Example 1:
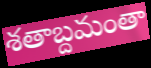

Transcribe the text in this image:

శతాబ్దమంతా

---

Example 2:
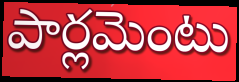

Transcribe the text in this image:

పార్లమెంటు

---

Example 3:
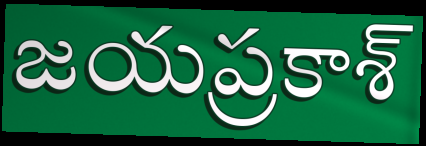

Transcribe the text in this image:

జయప్రకాశ్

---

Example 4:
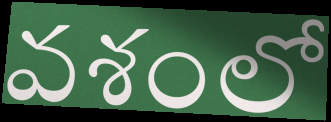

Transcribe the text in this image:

వశంలో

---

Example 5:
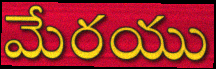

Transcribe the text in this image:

మేరయు